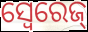
ସ୍ବେରେଜ୍